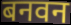
बनवन